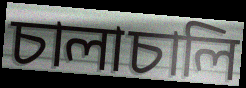
চালাচালি